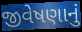
જીવેષણાનું